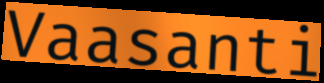
Vaasanti